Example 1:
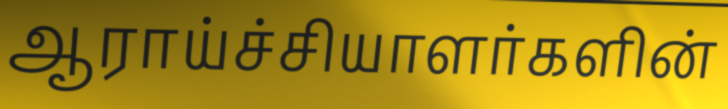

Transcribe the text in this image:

ஆராய்ச்சியாளர்களின்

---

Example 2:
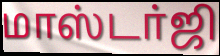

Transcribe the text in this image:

மாஸ்டர்ஜி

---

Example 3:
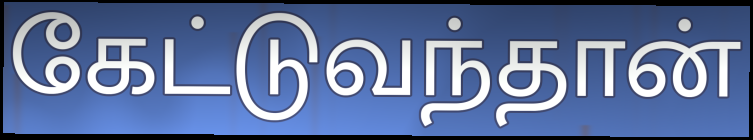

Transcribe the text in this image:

கேட்டுவந்தான்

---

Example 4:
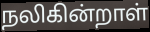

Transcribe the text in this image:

நலிகின்றாள்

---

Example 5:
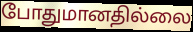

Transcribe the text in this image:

போதுமானதில்லை